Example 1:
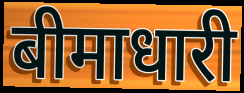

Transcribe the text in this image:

बीमाधारी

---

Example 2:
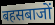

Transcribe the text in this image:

बहसबाजों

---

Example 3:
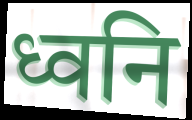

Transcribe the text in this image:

ध्‍वनि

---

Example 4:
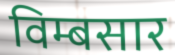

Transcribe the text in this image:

विम्बसार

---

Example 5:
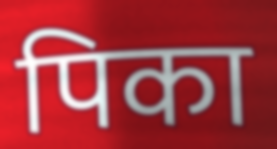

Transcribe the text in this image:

पिका